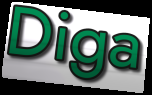
Diga